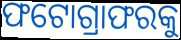
ଫଟୋଗ୍ରାଫରକୁ